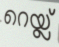
റെയ്ല്